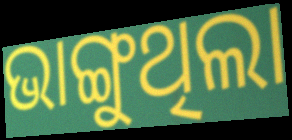
ଭାଙ୍ଗୁଥିଲା